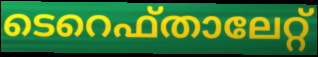
ടെറെഫ്താലേറ്റ്